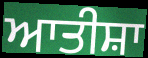
ਆਤੀਸ਼ਾ